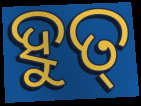
ହୁତ୍